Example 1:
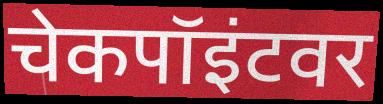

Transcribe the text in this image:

चेकपॉइंटवर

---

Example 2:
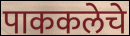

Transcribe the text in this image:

पाककलेचे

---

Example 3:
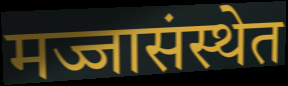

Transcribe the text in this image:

मज्जासंस्थेत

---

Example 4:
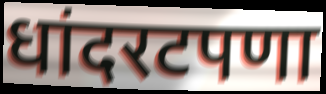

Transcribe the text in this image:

धांदरटपणा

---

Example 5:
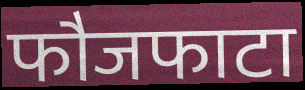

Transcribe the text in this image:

फौजफाटा